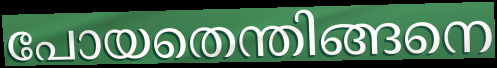
പോയതെന്തിങ്ങനെ